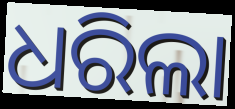
ଧରିଲା